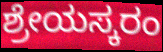
ಶ್ರೇಯಸ್ಕರಂ